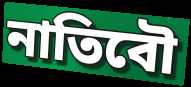
নাতিবৌ